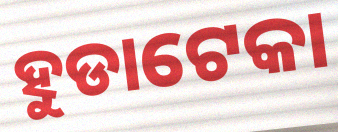
ହୁଡାଟେକା